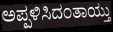
ಅಪ್ಪಳಿಸಿದಂತಾಯ್ತು